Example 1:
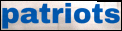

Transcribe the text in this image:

patriots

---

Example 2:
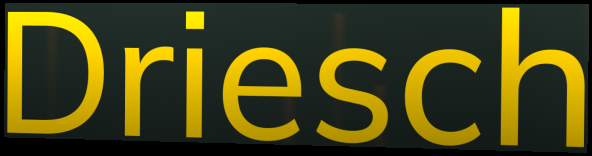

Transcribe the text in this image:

Driesch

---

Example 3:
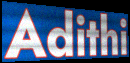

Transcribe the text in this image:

Adithi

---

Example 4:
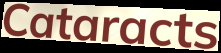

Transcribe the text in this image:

Cataracts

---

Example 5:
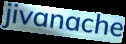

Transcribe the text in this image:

jivanache